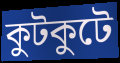
কুটকুটে